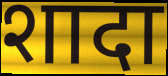
शादा